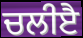
ਚਲੀੲੈ